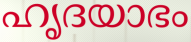
ഹൃദയാഭം